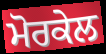
ਮੋਰਕੇਲ